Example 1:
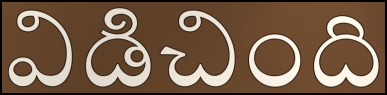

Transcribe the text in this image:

విడిచింది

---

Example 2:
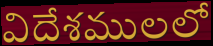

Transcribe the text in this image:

విదేశములలో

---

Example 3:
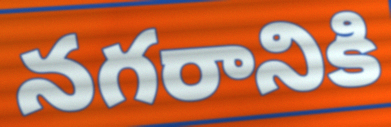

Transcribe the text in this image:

నగరానికి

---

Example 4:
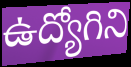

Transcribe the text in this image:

ఉద్యోగిని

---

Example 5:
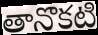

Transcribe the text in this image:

తానొకటి